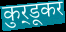
कुर्डूकर